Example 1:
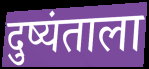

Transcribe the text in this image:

दुष्यंताला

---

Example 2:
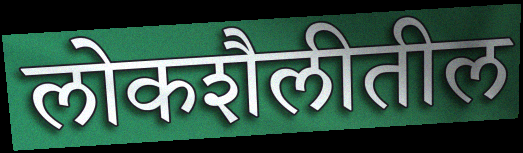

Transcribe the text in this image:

लोकशैलीतील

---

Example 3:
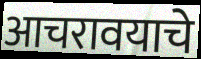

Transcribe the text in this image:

आचरावयाचे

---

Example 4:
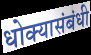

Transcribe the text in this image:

धोक्यासंबंधी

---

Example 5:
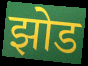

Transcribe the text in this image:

झोड